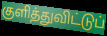
குளித்துவிட்டுப்